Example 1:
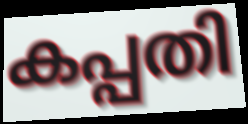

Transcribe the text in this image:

കപ്പതി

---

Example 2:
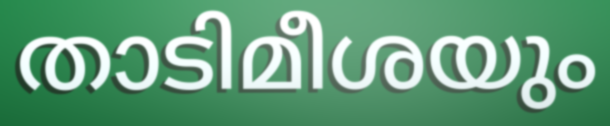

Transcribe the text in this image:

താടിമീശയും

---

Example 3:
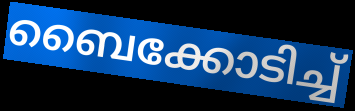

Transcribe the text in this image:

ബൈക്കോടിച്ച്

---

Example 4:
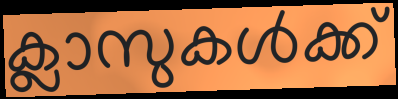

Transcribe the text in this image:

ക്ലാസുകൾക്ക്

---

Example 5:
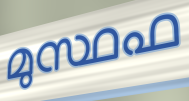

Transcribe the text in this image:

മുസ്ഥഫ